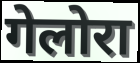
गेलोरा